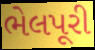
ભેલપૂરી